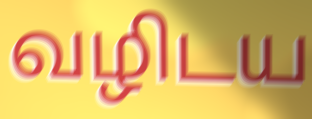
வழிடய